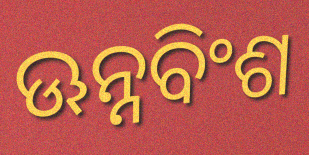
ଊନ୍ନବିଂଶ